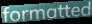
formatted